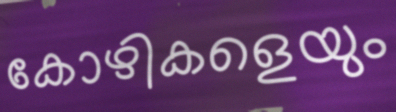
കോഴികളെയും